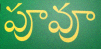
పూవూ